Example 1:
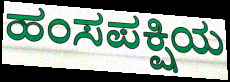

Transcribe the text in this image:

ಹಂಸಪಕ್ಷಿಯ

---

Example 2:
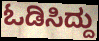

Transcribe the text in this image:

ಓಡಿಸಿದ್ದು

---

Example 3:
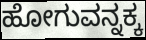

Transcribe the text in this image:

ಹೋಗುವನ್ನಕ್ಕ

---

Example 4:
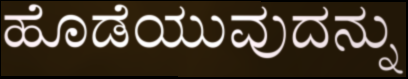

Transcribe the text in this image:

ಹೊಡೆಯುವುದನ್ನು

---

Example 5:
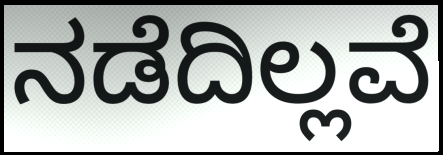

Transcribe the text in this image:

ನಡೆದಿಲ್ಲವೆ